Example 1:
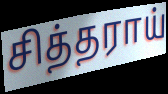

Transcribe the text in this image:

சித்தராய்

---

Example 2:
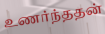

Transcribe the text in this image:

உணர்ந்ததன்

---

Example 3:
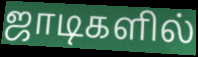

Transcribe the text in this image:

ஜாடிகளில்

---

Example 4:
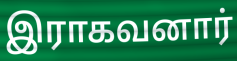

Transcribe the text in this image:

இராகவனார்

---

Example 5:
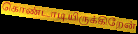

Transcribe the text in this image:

கொண்டாடியிருக்கிறேன்